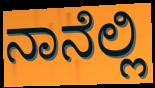
ನಾನೆಲ್ಲಿ